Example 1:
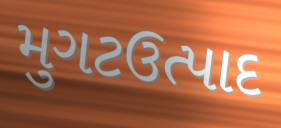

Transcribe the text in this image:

મુગટઉત્પાદ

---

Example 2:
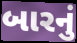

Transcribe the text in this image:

બારનું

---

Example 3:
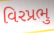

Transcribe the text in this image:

વિરપ્રભુ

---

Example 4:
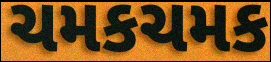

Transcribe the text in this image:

ચમકચમક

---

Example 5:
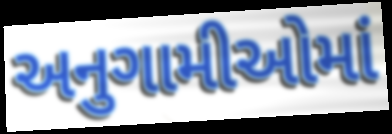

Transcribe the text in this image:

અનુગામીઓમાં